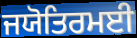
ਜਯੋਤਿਰਮਈ